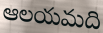
ఆలయమది